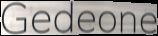
Gedeone